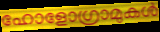
ഹോളോഗ്രാമുകൾ